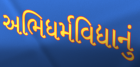
અભિધર્મવિદ્યાનું